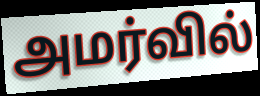
அமர்வில்